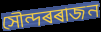
সৌন্দৰৰাজন